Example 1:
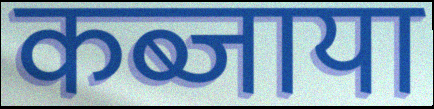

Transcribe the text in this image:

कब्जाया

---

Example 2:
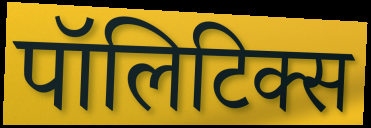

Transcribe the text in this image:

पॉलिटिक्स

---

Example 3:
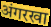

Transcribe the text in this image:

अंगरखा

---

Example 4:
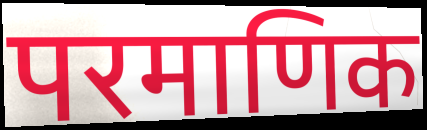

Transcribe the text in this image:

परमाणिक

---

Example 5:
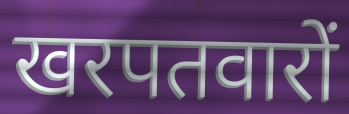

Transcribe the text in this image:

खरपतवारों